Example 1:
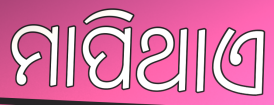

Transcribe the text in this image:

ମାପିଥାଏ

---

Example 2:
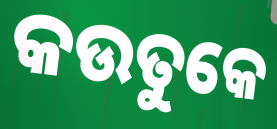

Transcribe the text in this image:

କଉତୁକେ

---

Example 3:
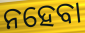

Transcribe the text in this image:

ନହେବା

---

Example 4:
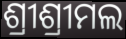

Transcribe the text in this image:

ଶ୍ରୀଶ୍ରୀମଲ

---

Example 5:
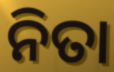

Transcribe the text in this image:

ନିତା